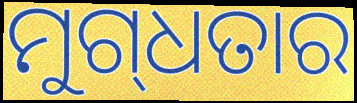
ମୁଗ୍‍ଧତାର